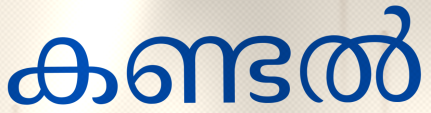
കണ്ടൽ